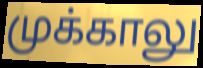
முக்காலு